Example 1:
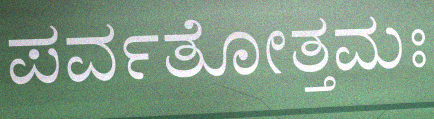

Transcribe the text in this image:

ಪರ್ವತೋತ್ತಮಃ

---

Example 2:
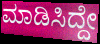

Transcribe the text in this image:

ಮಾಡಿಸಿದ್ದೇ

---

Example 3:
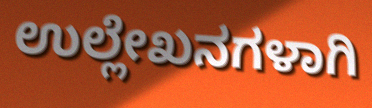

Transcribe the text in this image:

ಉಲ್ಲೇಖನಗಳಾಗಿ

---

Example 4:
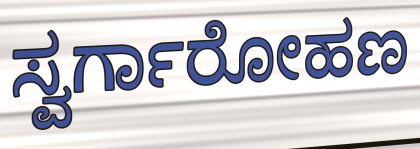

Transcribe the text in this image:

ಸ್ವರ್ಗಾರೋಹಣ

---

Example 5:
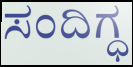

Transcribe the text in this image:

ಸಂದಿಗ್ಧ